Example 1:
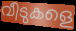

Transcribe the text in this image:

വീടുകളെ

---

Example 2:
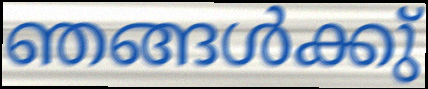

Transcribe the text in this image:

ഞങ്ങൾക്കു്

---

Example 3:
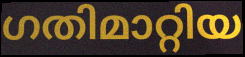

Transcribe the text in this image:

ഗതിമാറ്റിയ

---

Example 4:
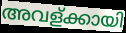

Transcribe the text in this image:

അവള്ക്കായി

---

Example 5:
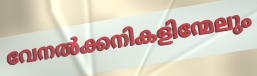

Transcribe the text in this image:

വേനൽക്കനികളിന്മേലും